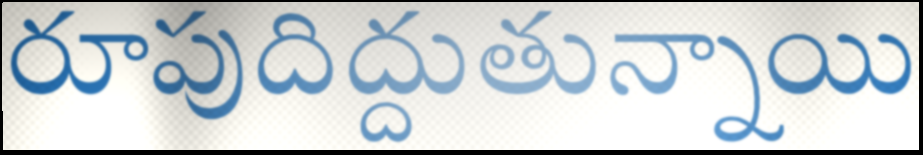
రూపుదిద్దుతున్నాయి